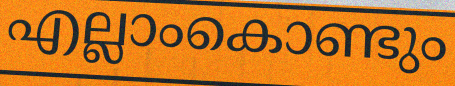
എല്ലാംകൊണ്ടും